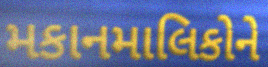
મકાનમાલિકોને